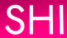
SHI